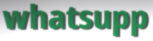
whatsupp